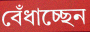
বেঁধাচ্ছেন